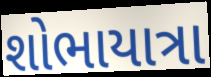
શોભાયાત્રા